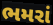
ભમરાં